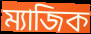
ম্যাজিক